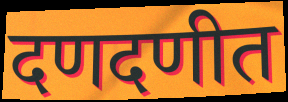
दणदणीत